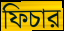
ফিচার